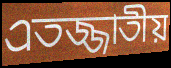
এতজ্জাতীয়